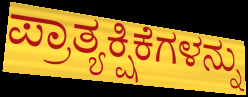
ಪ್ರಾತ್ಯಕ್ಷಿಕೆಗಳನ್ನು